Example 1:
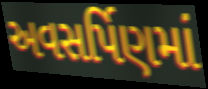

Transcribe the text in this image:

અવસર્પિણમાં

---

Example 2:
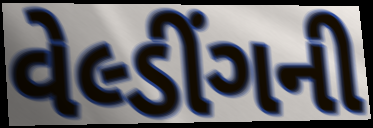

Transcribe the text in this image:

વેલ્ડીંગની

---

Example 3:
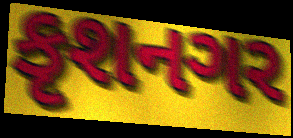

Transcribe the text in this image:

કૃશનગર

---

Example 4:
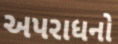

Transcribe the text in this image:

અપરાધનો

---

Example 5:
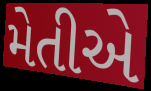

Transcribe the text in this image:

મેતીએ